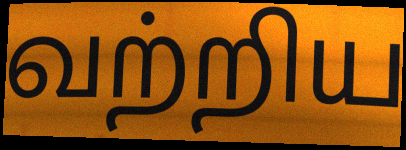
வற்றிய